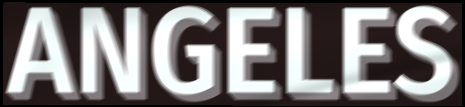
ANGELES